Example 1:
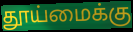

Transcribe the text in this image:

தூய்மைக்கு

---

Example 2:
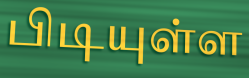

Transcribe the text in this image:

பிடியுள்ள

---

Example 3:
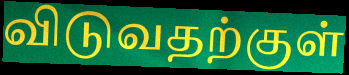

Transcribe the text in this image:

விடுவதற்குள்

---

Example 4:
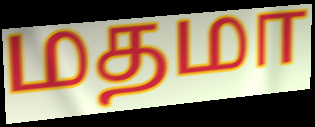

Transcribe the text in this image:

மதமா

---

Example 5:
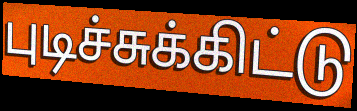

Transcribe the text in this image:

புடிச்சுக்கிட்டு